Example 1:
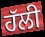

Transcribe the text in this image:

ਹੱਲੀ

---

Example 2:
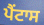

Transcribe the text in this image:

ਪੈਂਟਾਸ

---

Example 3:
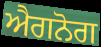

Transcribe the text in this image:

ਐਗਨੋਗ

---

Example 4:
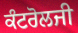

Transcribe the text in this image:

ਕੰਟਰੋਲਜੀ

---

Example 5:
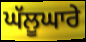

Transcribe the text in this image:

ਘੱਲੂਘਾਰੇ